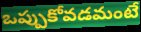
ఒప్పుకోవడమంటే